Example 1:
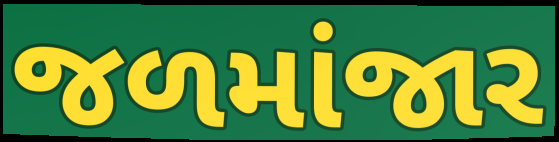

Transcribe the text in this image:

જળમાંજાર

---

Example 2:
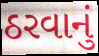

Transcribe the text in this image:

ઠરવાનું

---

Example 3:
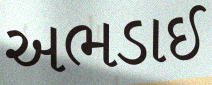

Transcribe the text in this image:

અભડાઈ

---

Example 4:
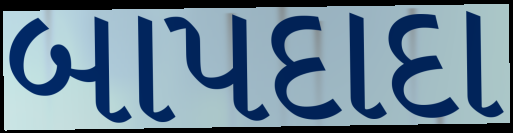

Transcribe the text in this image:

બાપદાદા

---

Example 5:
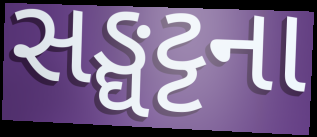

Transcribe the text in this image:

સઙ્ઘટ્ટના